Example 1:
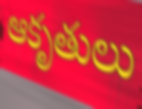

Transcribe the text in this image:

ఆకృతులు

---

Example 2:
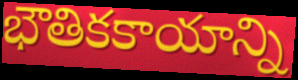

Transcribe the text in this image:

భౌతికకాయాన్ని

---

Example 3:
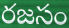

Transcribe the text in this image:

రజసం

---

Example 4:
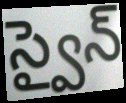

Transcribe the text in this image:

స్వైన్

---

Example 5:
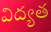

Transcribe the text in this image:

విద్యత